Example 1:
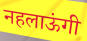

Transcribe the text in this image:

नहलाऊंगी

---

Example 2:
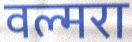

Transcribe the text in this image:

वल्मरा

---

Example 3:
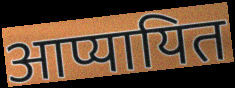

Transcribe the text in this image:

आप्यायित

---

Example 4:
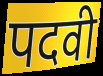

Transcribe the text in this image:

पदवी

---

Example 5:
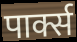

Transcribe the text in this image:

पार्क्स